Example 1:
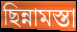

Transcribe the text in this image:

ছিন্নামস্তা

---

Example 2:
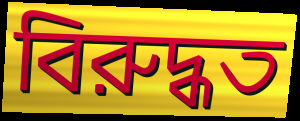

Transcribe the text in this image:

বিৰুদ্ধত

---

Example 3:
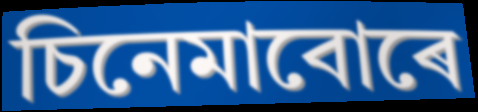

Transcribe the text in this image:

চিনেমাবোৰে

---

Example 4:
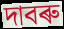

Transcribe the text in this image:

দাবৰু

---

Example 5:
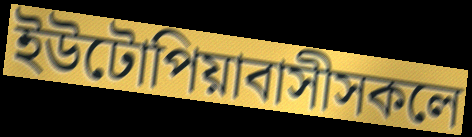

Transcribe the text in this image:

ইউটোপিয়াবাসীসকলে